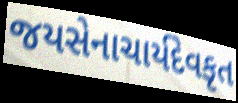
જયસેનાચાર્યદેવકૃત